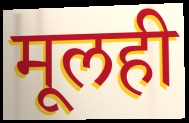
मूलही